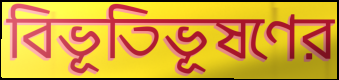
বিভূতিভূষণের